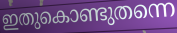
ഇതുകൊണ്ടുതന്നെ